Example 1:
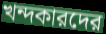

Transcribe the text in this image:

খন্দকারদের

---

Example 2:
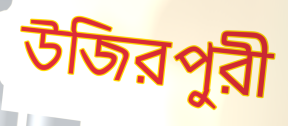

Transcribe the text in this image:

উজিরপুরী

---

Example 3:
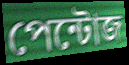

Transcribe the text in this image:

পেন্টোজ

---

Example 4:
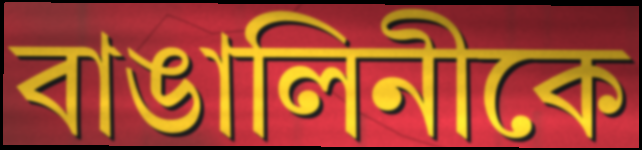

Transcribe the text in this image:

বাঙালিনীকে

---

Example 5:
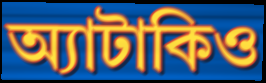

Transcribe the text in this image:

অ্যাটাকিও